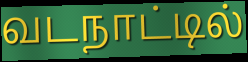
வடநாட்டில்